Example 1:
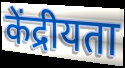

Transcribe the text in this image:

केंद्रीयता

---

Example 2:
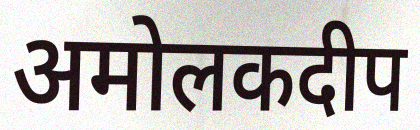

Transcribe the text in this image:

अमोलकदीप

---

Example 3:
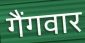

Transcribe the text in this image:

गैंगवार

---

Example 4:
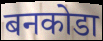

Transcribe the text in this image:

बनकोडा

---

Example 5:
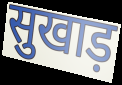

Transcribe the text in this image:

सुखाड़